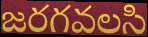
జరగవలసి